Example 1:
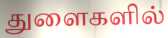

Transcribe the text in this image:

துளைகளில்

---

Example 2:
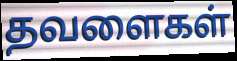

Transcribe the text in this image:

தவளைகள்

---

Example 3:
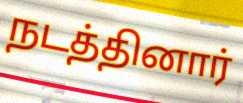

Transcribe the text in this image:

நடத்தினார்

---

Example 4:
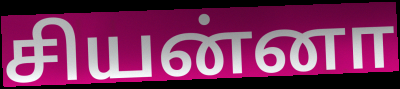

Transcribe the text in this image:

சியன்னா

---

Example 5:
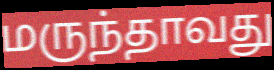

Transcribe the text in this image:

மருந்தாவது